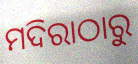
ମଦିରାଠାରୁ